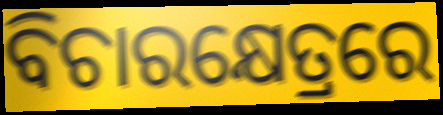
ବିଚାରକ୍ଷେତ୍ରରେ